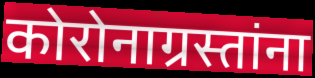
कोरोनाग्रस्तांना